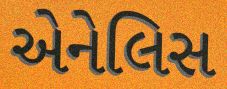
એનેલિસ